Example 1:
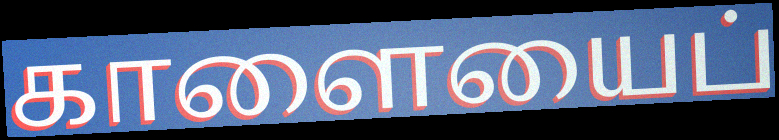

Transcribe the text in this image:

காளையைப்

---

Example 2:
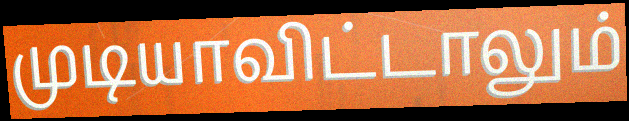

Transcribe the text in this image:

முடியாவிட்டாலும்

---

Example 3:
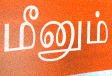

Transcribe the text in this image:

மீனும்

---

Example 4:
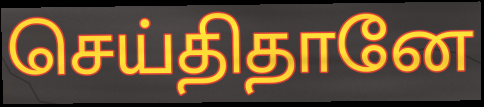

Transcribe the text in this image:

செய்திதானே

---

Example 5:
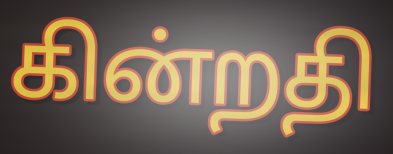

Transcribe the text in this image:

கின்றதி